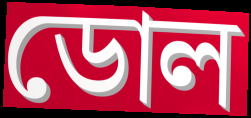
ডোল